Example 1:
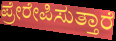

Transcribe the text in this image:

ಪ್ರೇರೇಪಿಸುತ್ತಾರೆ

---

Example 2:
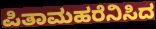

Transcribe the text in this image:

ಪಿತಾಮಹರೆನಿಸಿದ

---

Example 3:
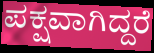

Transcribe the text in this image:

ಪಕ್ಷವಾಗಿದ್ದರೆ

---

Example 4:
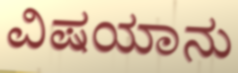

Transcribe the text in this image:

ವಿಷಯಾನು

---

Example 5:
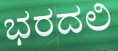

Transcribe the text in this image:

ಭರದಲಿ